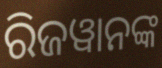
ରିଜୱାନଙ୍କ